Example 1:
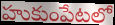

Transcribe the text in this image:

హుకుంపేటలో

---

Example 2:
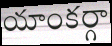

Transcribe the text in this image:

యాంకర్గా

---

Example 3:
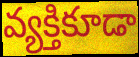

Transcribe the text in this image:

వ్యక్తికూడా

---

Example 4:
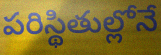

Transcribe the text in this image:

పరిస్థితుల్లోనే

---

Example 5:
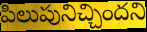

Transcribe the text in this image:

పిలుపునిచ్చిందని